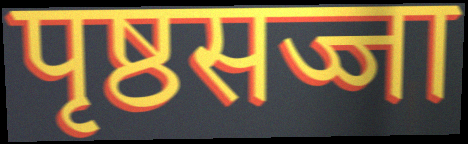
पृष्ठसज्जा